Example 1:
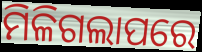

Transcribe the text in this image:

ମିଳିଗଲାପରେ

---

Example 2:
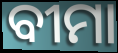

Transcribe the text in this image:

ବୀମା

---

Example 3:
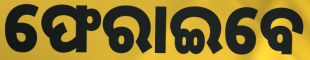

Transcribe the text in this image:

ଫେରାଇବେ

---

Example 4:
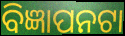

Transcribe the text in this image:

ବିଜ୍ଞାପନଟା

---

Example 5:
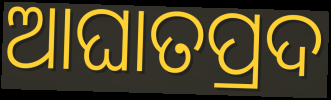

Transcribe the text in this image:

ଆଘାତପ୍ରଦ